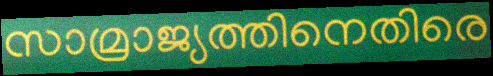
സാമ്രാജ്യത്തിനെതിരെ